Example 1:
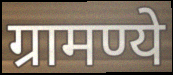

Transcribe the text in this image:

ग्रामण्ये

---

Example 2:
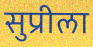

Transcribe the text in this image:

सुप्रीला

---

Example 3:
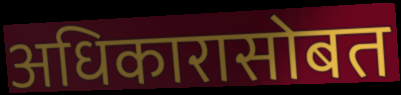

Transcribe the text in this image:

अधिकारासोबत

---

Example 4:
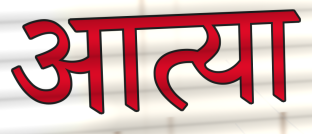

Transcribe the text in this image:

आत्या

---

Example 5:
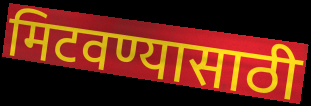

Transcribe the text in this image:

मिटवण्यासाठी